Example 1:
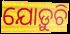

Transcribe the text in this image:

ଯୋଡ଼ୁଚି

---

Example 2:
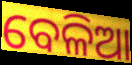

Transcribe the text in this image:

ବେଳିଆ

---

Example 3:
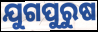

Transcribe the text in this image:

ଯୁଗପୁରୁଷ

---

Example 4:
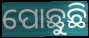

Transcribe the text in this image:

ପୋଛୁଛି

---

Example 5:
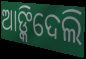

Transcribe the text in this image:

ଆଙ୍କିଦେଲି